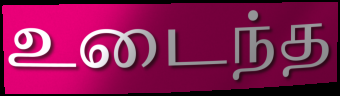
உடைந்த